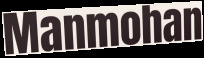
Manmohan